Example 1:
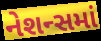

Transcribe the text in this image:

નેશન્સમાં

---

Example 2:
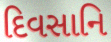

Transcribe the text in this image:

દિવસાનિ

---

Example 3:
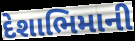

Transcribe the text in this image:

દેશાભિમાની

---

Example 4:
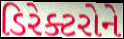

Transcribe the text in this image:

ડિરેક્ટરોને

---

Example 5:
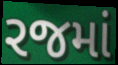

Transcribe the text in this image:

રજમાં